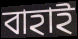
বাহাই